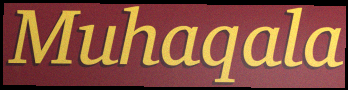
Muhaqala